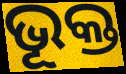
ଭୂକ୍ତ